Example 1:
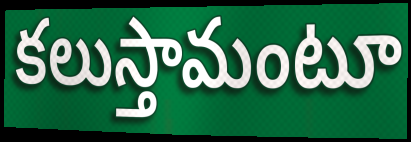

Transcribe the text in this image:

కలుస్తామంటూ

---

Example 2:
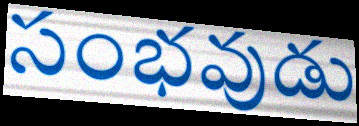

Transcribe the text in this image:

సంభవుడు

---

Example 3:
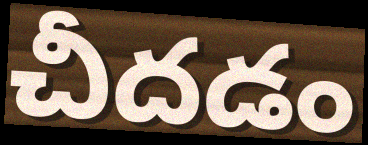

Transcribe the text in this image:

చీదడం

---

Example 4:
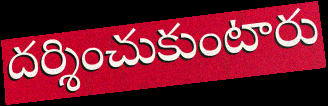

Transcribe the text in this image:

దర్శించుకుంటారు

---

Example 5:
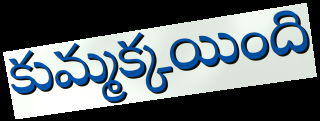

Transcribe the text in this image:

కుమ్మక్కయింది